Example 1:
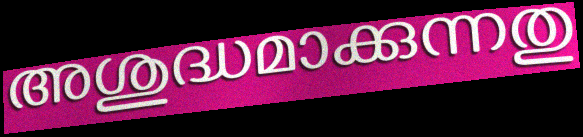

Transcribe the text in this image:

അശുദ്ധമാക്കുന്നതു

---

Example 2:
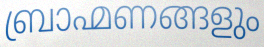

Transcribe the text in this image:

ബ്രാഹ്മണങ്ങളും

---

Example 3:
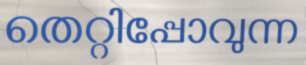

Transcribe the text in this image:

തെറ്റിപ്പോവുന്ന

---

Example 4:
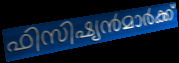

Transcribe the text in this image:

ഫിസിഷ്യൻമാർക്ക്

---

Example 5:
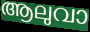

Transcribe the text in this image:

ആലുവാ